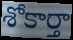
శోకార్తా